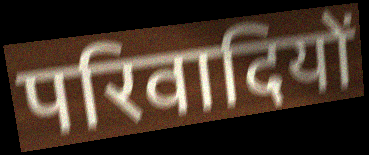
परिवादियों